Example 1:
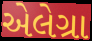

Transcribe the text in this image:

એલેગ્રા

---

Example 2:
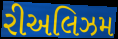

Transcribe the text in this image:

રીઅલિઝમ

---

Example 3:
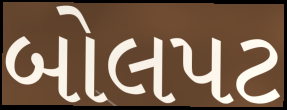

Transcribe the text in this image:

બોલપટ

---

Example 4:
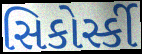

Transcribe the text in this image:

સિકોર્સ્કી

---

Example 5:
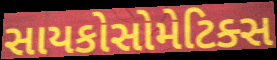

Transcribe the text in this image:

સાયકોસોમેટિક્સ